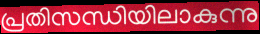
പ്രതിസന്ധിയിലാകുന്നു